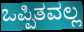
ಒಪ್ಪಿತವಲ್ಲ